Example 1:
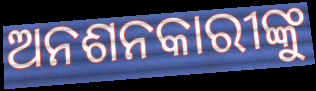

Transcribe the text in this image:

ଅନଶନକାରୀଙ୍କୁ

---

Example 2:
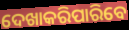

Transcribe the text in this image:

ଦେଖାକରିପାରିବେ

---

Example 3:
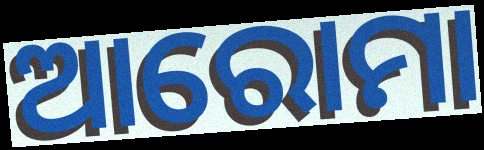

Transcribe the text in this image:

ଆରୋମା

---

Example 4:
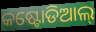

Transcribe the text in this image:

କଷ୍ଟୋଡିଆଲ୍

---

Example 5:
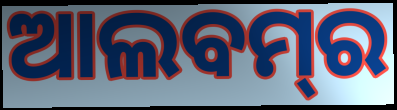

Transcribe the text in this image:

ଆଲବମ୍‌ର